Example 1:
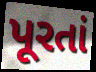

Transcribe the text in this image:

પૂરતાં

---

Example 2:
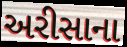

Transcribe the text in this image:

અરીસાના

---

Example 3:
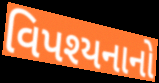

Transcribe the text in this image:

વિપશ્યનાનો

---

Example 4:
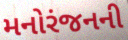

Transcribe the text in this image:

મનોરંજનની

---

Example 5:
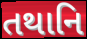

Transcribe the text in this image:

તથાનિ